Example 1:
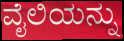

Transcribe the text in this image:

ವೈಲಿಯನ್ನು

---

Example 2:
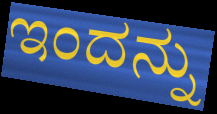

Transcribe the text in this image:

ಇಂದನ್ನು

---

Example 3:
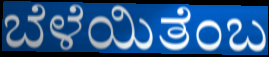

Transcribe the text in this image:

ಬೆಳೆಯಿತೆಂಬ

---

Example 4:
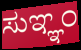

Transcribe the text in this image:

ಸುಞ್ಞಂ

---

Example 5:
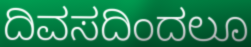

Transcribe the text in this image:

ದಿವಸದಿಂದಲೂ